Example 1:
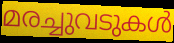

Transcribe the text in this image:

മരച്ചുവടുകൾ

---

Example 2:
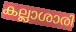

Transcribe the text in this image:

കല്ലാശാരി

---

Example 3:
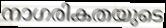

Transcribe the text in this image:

നാഗരികതയുടെ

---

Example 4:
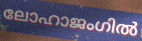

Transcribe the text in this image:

ലോഹാജംഗിൽ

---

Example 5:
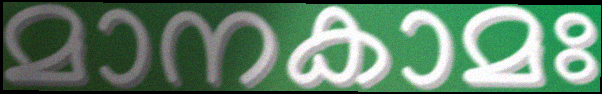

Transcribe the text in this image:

മാനകാമഃ